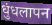
धुंधलापन